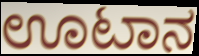
ಊಟಾನ